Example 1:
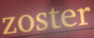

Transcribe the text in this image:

zoster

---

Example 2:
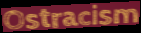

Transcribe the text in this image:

Ostracism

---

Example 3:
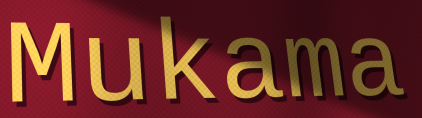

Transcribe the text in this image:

Mukama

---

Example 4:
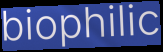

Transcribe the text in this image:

biophilic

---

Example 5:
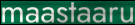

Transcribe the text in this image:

maastaaru